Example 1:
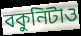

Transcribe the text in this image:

বকুনিটাও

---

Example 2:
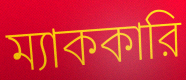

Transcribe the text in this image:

ম্যাককারি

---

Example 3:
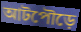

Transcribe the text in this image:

আটপৌড়ে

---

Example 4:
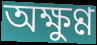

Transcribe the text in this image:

অক্ষুণ্ণ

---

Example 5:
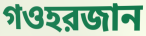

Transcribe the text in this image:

গওহরজান